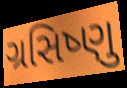
ગ્રસિષ્ણુ